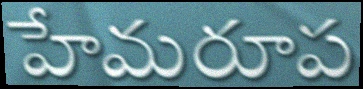
హేమరూప